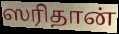
ஸரிதான்